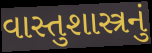
વાસ્તુશાસ્ત્રનું